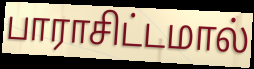
பாராசிட்டமால்